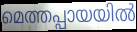
മെത്തപ്പായയിൽ